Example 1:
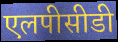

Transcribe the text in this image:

एलपीसीडी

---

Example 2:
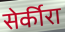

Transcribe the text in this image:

सेर्कीरा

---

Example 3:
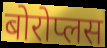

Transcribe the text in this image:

बोरोप्लस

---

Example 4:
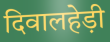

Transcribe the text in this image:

दिवालहेड़ी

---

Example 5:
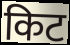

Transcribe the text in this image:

किट